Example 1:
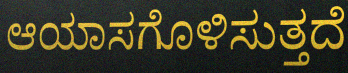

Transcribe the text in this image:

ಆಯಾಸಗೊಳಿಸುತ್ತದೆ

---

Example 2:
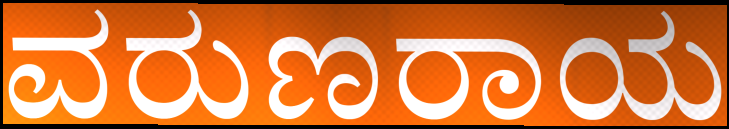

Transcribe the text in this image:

ವರುಣರಾಯ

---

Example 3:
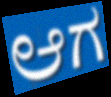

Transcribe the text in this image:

ಆಗ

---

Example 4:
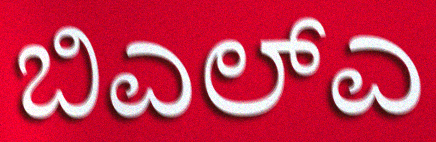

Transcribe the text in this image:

ಬಿಎಲ್ಎ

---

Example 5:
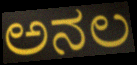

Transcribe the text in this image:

ಅನಲ